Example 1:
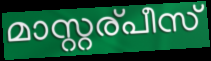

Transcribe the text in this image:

മാസ്റ്റര്പീസ്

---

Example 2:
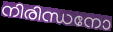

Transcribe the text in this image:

നിരിന്ധനോ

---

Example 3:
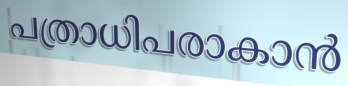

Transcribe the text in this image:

പത്രാധിപരാകാൻ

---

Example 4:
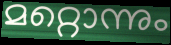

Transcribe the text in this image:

മറ്റൊന്നും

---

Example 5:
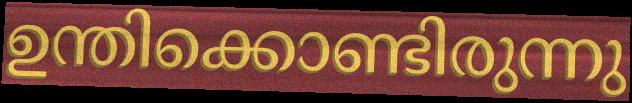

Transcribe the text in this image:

ഉന്തിക്കൊണ്ടിരുന്നു